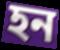
হন